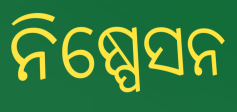
ନିଷ୍ପେସନ